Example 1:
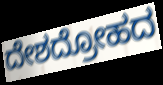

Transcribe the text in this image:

ದೇಶದ್ರೋಹದ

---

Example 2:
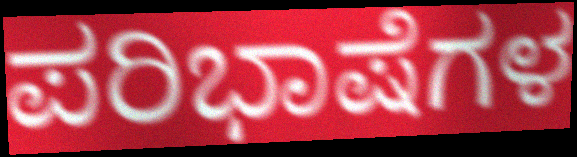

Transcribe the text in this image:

ಪರಿಭಾಷೆಗಳ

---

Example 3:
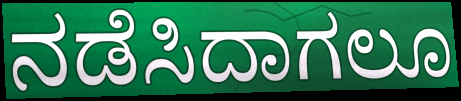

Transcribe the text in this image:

ನಡೆಸಿದಾಗಲೂ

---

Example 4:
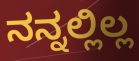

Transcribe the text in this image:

ನನ್ನಲ್ಲಿಲ್ಲ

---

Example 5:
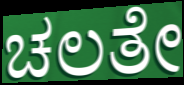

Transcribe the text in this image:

ಚಲತೇ